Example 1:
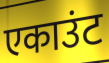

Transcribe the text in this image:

एकाउंट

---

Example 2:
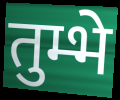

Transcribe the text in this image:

तुम्भे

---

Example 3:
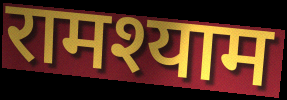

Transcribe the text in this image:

रामश्याम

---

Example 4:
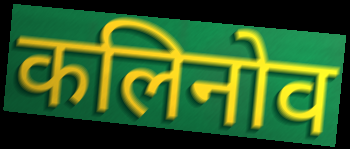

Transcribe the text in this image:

कलिनोव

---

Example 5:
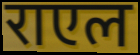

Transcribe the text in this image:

राएल